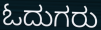
ಓದುಗರು